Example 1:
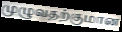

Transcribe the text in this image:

முழுவதற்குமான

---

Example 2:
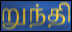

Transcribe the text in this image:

றுந்தி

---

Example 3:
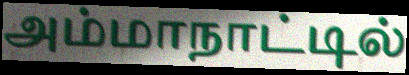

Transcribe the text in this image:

அம்மாநாட்டில்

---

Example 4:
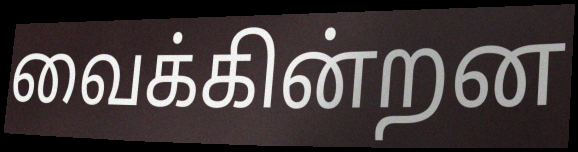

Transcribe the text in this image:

வைக்கின்றன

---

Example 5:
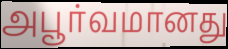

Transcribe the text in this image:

அபூர்வமானது